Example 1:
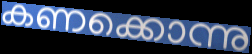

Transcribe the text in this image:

കണക്കൊന്നു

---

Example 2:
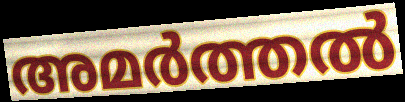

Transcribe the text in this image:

അമർത്തൽ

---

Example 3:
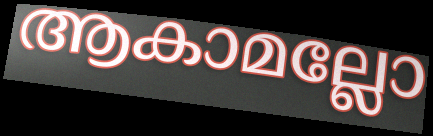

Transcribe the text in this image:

ആകാമല്ലോ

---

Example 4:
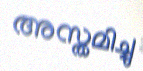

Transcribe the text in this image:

അസ്തമിച്ചു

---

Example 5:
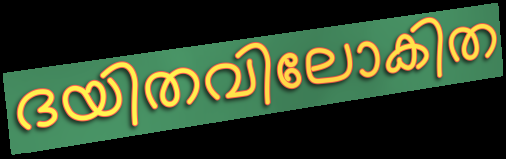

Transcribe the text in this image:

ദയിതവിലോകിത